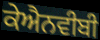
ਕੇਐਨਵੀਬੀ